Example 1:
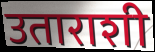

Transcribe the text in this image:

उताराशी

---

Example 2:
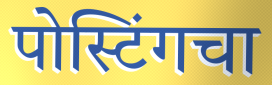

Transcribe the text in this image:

पोस्टिंगचा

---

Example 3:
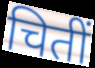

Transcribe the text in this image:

चितीं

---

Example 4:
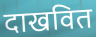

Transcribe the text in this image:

दाखवित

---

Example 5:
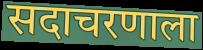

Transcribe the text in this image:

सदाचरणाला